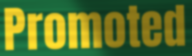
Promoted